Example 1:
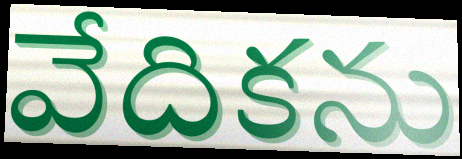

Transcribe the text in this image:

వేదికను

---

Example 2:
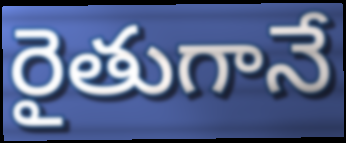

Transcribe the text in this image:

రైతుగానే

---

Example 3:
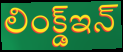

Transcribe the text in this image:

లింక్డ్ఇన్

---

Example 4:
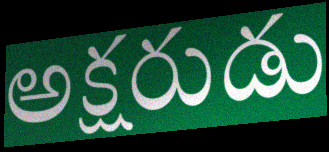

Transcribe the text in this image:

అక్షరుడు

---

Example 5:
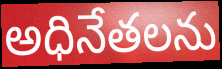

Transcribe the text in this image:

అధినేతలను